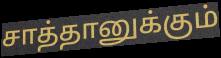
சாத்தானுக்கும்